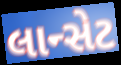
લાન્સેટ